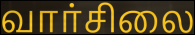
வார்சிலை